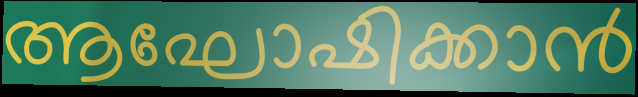
ആഘോഷിക്കാൻ